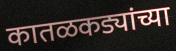
कातळकड्यांच्या